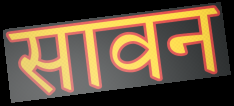
सावन